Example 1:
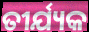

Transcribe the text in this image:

ତୀର୍ଯ୍ୟକ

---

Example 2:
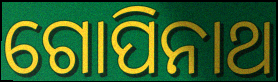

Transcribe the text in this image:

ଗୋପିନାଥ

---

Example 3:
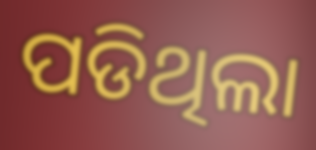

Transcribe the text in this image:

ପଡିଥିଲା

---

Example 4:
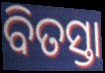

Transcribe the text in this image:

ବିତସ୍ତା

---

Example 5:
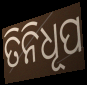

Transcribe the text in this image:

ତିନିଧୂପ